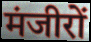
मंजीरों